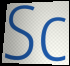
Sc